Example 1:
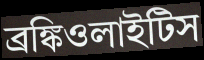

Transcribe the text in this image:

ব্রঙ্কিওলাইটিস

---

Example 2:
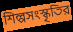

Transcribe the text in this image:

শিল্পসংস্কৃতির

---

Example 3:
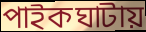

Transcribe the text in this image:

পাইকঘাটায়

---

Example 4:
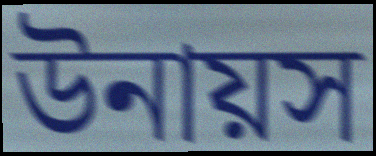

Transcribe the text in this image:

উনায়স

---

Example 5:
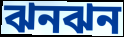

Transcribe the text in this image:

ঝনঝন